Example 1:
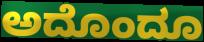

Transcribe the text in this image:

ಅದೊಂದೂ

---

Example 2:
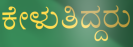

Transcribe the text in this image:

ಕೇಳುತಿದ್ದರು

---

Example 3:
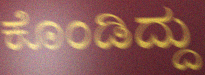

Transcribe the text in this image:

ಕೊಂಡಿದ್ದು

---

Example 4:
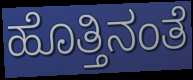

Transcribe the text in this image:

ಹೊತ್ತಿನಂತೆ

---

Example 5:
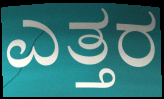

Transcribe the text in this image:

ಎತ್ತರ